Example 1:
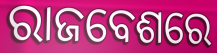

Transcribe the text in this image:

ରାଜବେଶରେ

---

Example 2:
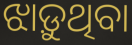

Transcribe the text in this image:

ଝାଡ଼ୁଥିବା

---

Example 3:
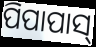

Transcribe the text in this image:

ପିପାପାସ୍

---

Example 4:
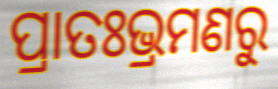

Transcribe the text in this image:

ପ୍ରାତଃଭ୍ରମଣରୁ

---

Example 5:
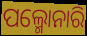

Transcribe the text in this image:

ପଲ୍ମୋନାରି